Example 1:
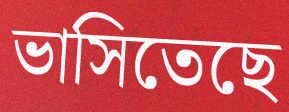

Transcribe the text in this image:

ভাসিতেছে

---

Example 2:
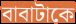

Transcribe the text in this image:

বাবাটাকে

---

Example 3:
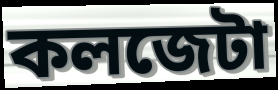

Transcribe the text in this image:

কলজেটা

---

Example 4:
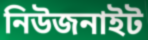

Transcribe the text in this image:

নিউজনাইট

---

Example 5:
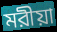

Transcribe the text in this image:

মরীয়া